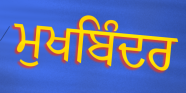
ਮੁਖਬਿੰਦਰ